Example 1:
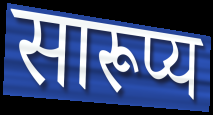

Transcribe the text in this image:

सारूप्य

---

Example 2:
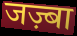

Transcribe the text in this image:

जज़्बा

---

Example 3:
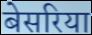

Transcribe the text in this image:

बेसरिया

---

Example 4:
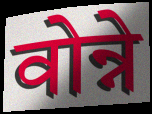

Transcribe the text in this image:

वोन्ने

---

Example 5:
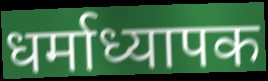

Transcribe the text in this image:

धर्माध्यापक